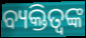
ବ୍ୟକ୍ତିତ୍ବଙ୍କ